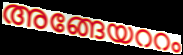
അങ്ങേയററം